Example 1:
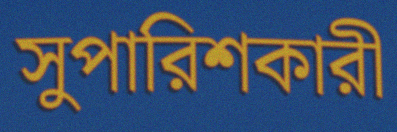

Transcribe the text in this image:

সুপারিশকারী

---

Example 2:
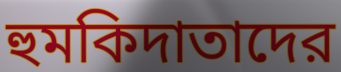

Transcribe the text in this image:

হুমকিদাতাদের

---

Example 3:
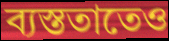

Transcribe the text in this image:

ব্যস্ততাতেও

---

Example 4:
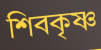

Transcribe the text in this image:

শিবকৃষ্ণ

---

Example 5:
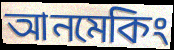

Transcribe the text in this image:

আনমেকিং